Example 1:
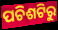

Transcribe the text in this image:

ପଚିଶଟିରୁ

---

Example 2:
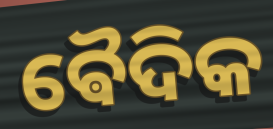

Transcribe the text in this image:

ଵୈଦିକ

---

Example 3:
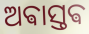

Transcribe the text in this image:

ଅଵାସ୍ତଵ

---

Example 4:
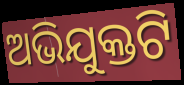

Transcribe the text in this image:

ଅଭିଯୁକ୍ତଟି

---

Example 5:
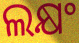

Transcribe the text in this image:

ଲକ୍ଷଂ